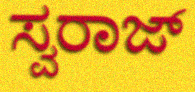
ಸ್ವರಾಜ್